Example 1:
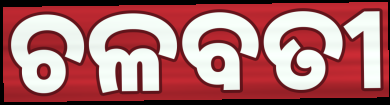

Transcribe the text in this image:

ଚଳବତୀ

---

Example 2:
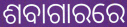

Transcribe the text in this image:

ଶବାଗାରରେ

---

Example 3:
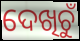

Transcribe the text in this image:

ଦେଖିଚୁଁ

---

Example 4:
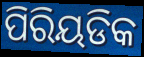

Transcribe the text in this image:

ପିରିୟଡିକ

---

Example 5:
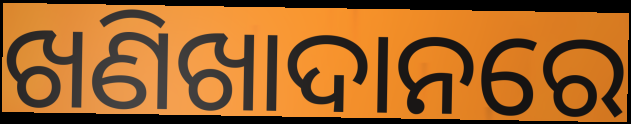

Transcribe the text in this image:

ଖଣିଖାଦାନରେ